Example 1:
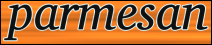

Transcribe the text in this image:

parmesan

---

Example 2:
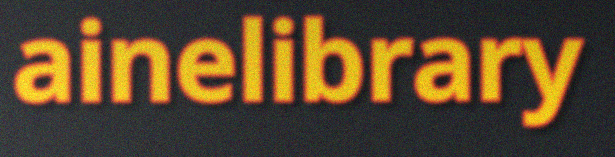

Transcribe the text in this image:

ainelibrary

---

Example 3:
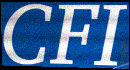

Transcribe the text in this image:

CFI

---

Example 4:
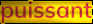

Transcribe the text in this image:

puissant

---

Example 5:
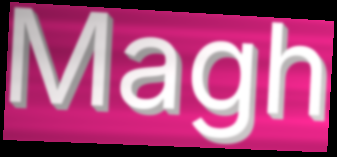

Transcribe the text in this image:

Magh